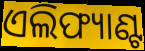
ଏଲିଫ୍ୟାଣ୍ଟ